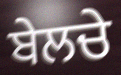
ਬੇਲਚੇ